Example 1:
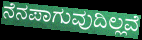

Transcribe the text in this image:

ನೆನಪಾಗುವುದಿಲ್ಲವೆ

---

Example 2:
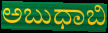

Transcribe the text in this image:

ಅಬುಧಾಬಿ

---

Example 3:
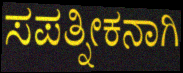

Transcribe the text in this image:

ಸಪತ್ನೀಕನಾಗಿ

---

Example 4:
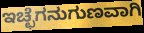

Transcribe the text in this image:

ಇಚ್ಛೆಗನುಗುಣವಾಗಿ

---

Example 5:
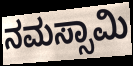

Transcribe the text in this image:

ನಮಸ್ಸಾಮಿ